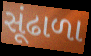
સૂંઢાળા